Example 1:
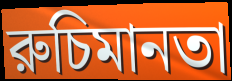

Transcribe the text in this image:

রুচিমানতা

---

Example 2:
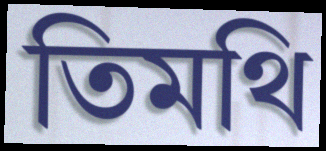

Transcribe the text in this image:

তিমথি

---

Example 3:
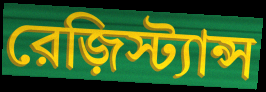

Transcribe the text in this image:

রেজ়িস্ট্যান্স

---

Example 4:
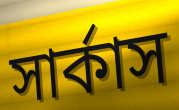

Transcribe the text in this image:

সার্কাস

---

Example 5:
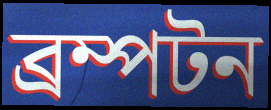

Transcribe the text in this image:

ব্রম্পটন